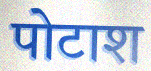
पोटाश